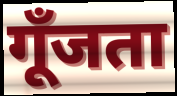
गूँजता